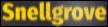
Snellgrove